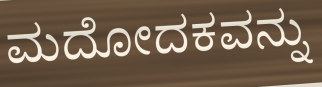
ಮದೋದಕವನ್ನು